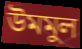
উমমুল